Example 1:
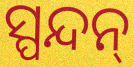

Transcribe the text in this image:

ସ୍ପନ୍ଦନ୍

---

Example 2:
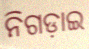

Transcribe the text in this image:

ନିଗଡ଼ାଇ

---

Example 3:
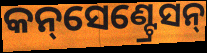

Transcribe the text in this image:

କନ୍‌ସେଣ୍ଟ୍ରେସନ୍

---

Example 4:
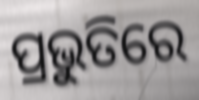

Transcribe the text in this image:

ପ୍ରଭୁତିରେ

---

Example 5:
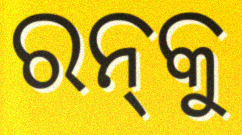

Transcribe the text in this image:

ରନ୍‌କୁ